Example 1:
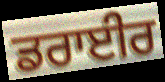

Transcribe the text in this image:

ਡਰਾਈਰ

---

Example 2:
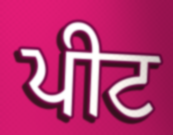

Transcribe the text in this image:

ਪੀਟ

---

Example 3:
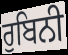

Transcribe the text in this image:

ਰੁਬਿਨੀ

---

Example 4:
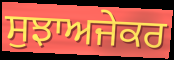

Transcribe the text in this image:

ਸੁਝਾਅਜੇਕਰ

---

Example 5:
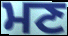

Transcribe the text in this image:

ਮਣ